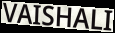
VAISHALI